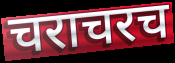
चराचरच